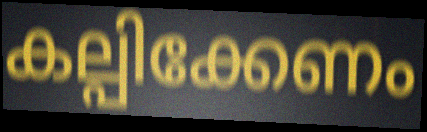
കല്പിക്കേണം